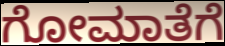
ಗೋಮಾತೆಗೆ